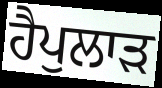
ਹੈਪੁਲਾੜ